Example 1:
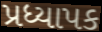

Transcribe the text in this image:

પ્રધ્યાપક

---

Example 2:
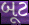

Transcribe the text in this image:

બૂટ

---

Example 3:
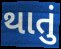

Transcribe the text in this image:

થાતું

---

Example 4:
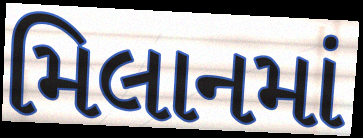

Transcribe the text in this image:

મિલાનમાં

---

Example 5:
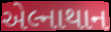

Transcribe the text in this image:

એલ્નાથાન